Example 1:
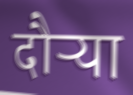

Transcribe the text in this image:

दौऱ्या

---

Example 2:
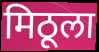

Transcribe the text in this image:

मिठूला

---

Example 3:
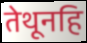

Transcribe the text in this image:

तेथूनहि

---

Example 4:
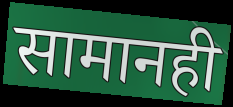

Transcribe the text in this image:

सामानही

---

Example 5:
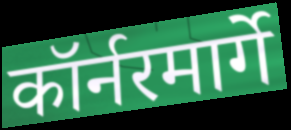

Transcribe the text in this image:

कॉर्नरमार्गे